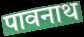
पावनाथ